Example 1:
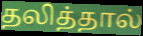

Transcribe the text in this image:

தலித்தால்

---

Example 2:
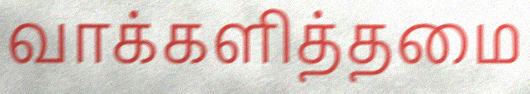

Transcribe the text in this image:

வாக்களித்தமை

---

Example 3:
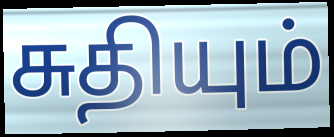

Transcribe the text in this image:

சுதியும்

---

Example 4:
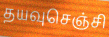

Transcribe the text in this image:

தயவுசெஞ்சி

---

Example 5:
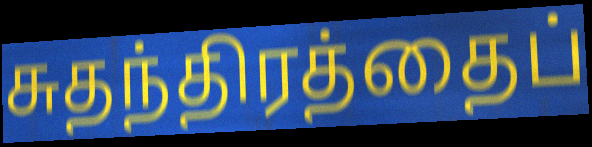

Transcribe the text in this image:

சுதந்திரத்தைப்